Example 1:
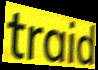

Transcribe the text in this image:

traid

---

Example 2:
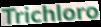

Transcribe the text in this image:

Trichloro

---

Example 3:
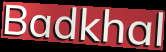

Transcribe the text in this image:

Badkhal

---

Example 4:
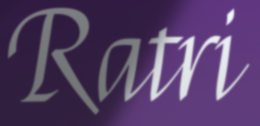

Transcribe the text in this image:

Ratri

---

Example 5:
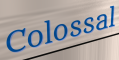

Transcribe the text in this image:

Colossal